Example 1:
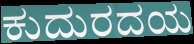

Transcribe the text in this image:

ಕುದುರದಯ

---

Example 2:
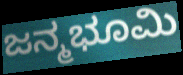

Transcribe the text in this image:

ಜನ್ಮಭೂಮಿ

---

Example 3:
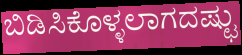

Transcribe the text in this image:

ಬಿಡಿಸಿಕೊಳ್ಳಲಾಗದಷ್ಟು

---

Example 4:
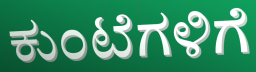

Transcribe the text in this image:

ಕುಂಟೆಗಳಿಗೆ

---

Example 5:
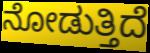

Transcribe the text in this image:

ನೋಡುತ್ತಿದೆ